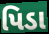
પિડા